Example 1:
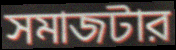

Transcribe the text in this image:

সমাজটার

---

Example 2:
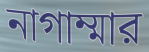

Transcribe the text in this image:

নাগাম্মার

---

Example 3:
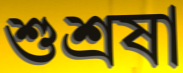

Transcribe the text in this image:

শুশ্রষা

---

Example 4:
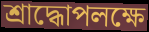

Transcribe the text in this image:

শ্রাদ্ধোপলক্ষে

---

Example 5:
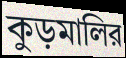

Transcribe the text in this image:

কুড়মালির